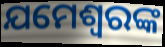
ଯମେଶ୍ୱରଙ୍କ